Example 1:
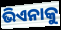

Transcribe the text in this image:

ଭିଏନାକୁ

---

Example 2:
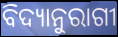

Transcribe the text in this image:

ବିଦ୍ୟାନୁରାଗୀ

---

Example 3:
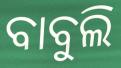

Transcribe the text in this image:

ବାବୁଲି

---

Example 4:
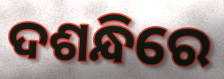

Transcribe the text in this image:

ଦଶନ୍ଧିରେ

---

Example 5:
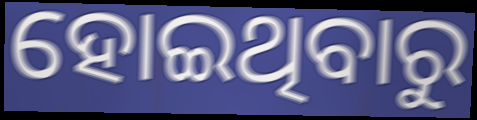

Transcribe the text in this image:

ହୋଇଥିବାରୁ